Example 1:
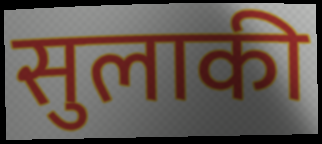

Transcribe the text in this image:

सुलाकी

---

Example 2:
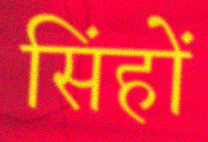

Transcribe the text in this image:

सिंहों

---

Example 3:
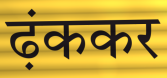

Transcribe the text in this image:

ढ़ंककर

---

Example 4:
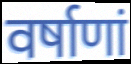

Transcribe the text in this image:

वर्षाणां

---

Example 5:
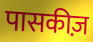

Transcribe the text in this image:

पासकीज़